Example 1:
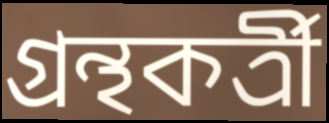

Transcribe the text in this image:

গ্রন্থকর্ত্রী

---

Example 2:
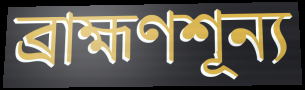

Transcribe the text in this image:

ব্রাহ্মণশূন্য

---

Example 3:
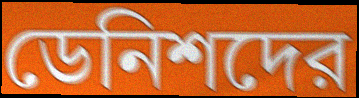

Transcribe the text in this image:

ডেনিশদের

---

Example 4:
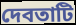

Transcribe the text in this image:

দেবতাটি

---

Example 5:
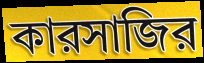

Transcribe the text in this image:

কারসাজির